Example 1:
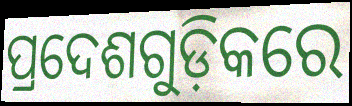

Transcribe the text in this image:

ପ୍ରଦେଶଗୁଡ଼ିକରେ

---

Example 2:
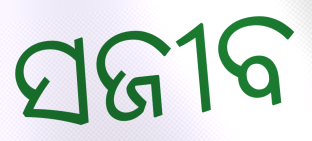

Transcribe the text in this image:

ସଜୀବ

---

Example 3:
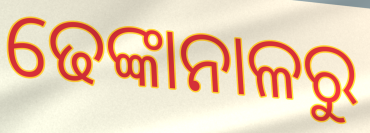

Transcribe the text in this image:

ଢେଙ୍କାନାଳରୁ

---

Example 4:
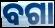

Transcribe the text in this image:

ବଗା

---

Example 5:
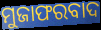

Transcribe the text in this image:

ମୁଜାଫରବାଦ